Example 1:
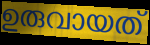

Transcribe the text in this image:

ഉരുവായത്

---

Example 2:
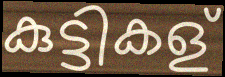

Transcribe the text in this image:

കുട്ടികള്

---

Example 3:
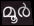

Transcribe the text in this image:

മൂർ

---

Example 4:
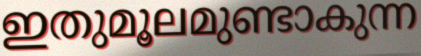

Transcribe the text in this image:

ഇതുമൂലമുണ്ടാകുന്ന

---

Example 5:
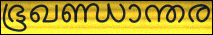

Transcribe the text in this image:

ഭൂഖണ്ഡാന്തര